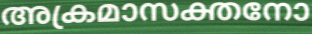
അക്രമാസക്തനോ